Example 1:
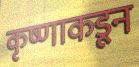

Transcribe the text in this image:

कृष्णाकडून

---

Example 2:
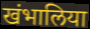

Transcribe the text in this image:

खंभालिया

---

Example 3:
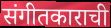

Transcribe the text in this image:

संगीतकाराची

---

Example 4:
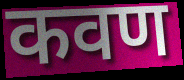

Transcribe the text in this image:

कवण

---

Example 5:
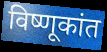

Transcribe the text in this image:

विष्णूकांत